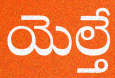
యెల్తే